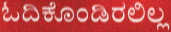
ಓದಿಕೊಂಡಿರಲಿಲ್ಲ